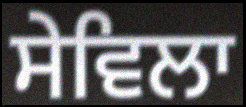
ਸੇਵਿਲਾ